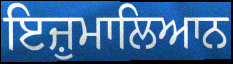
ਇਜ਼ੁਮਾਲਿਆਨ